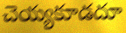
చెయ్యకూడదూ